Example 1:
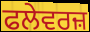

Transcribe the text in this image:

ਫਲੇਵਰਜ਼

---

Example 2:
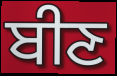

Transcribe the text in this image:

ਬੀਣ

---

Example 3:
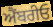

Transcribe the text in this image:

ਐਂਬਰੀਓ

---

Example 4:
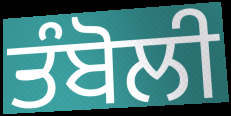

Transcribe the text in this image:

ਤੰਬੋਲੀ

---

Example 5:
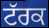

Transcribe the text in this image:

ਟੱਰਕ